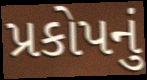
પ્રકોપનું